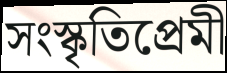
সংস্কৃতিপ্রেমী